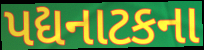
પદ્યનાટકના